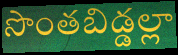
సొంతబిడ్డల్లా